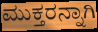
ಮುಕ್ತರನ್ನಾಗಿ